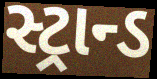
સ્ટ્રાન્ડ